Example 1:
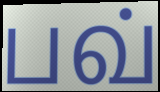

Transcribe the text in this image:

பவ்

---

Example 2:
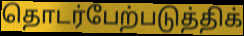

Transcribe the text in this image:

தொடர்பேற்படுத்திக்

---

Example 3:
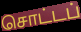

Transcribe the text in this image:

சொட்டப்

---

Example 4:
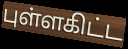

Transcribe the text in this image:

புள்ளகிட்ட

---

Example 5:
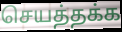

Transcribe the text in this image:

செயத்தக்க